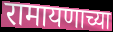
रामायणाच्या